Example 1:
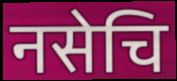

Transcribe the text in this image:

नसेचि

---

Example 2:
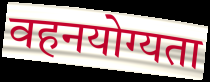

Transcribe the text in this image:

वहनयोग्यता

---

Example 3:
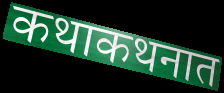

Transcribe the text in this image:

कथाकथनात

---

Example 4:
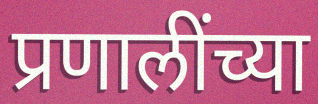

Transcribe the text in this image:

प्रणालींच्या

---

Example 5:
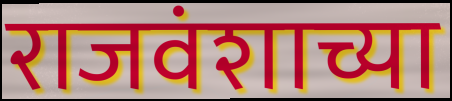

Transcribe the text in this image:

राजवंशाच्या